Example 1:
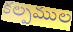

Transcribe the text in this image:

కల్పముల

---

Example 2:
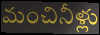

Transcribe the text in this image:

మంచినీళ్లు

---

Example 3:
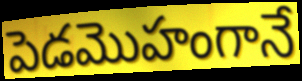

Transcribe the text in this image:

పెడమొహంగానే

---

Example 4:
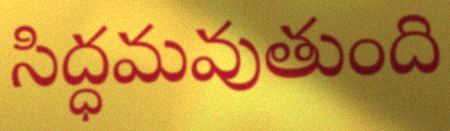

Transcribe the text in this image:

సిద్ధమవుతుంది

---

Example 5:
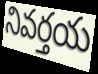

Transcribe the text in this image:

నివర్తయ